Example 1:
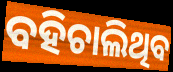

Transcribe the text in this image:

ବହିଚାଲିଥିବ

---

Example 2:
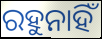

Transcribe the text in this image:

ରହୁନାହିଁ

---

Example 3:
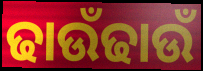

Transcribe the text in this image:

ଢାଉଁଢାଉଁ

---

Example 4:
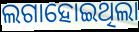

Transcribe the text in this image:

ଲଗାହୋଇଥିଲା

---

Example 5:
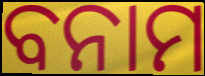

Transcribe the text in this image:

ବନାମ